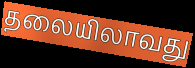
தலையிலாவது